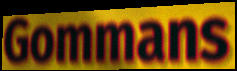
Gommans